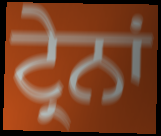
ਟ੍ਰੇਨਾਂ